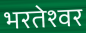
भरतेश्वर